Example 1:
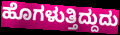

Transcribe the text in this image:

ಹೊಗಳುತ್ತಿದ್ದುದು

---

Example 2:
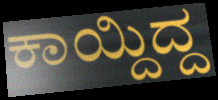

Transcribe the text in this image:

ಕಾಯ್ದಿದ್ದ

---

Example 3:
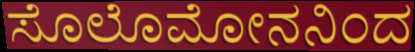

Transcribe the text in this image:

ಸೊಲೊಮೋನನಿಂದ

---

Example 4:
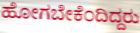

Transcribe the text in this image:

ಹೋಗಬೇಕೆಂದಿದ್ದರು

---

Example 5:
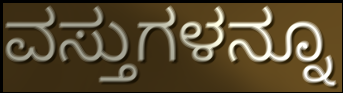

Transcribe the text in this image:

ವಸ್ತುಗಳನ್ನೂ